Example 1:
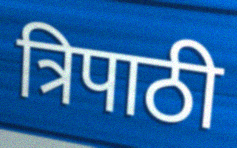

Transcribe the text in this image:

त्रिपाठी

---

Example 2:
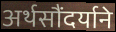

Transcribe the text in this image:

अर्थसौंदर्याने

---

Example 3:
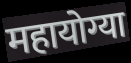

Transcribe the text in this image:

महायोग्या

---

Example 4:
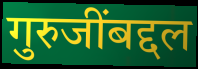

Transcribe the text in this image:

गुरुजींबद्दल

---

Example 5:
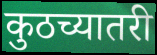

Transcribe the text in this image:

कुठच्यातरी